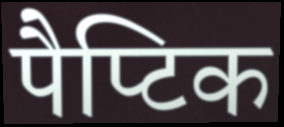
पैप्टिक